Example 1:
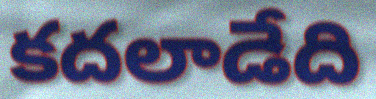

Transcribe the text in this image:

కదలాడేది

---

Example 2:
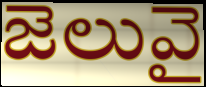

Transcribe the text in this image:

జెలువై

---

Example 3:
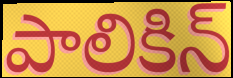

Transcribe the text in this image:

పాలికిన్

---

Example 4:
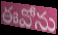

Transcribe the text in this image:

ఈవోను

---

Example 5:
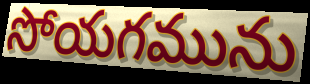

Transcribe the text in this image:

సోయగమును